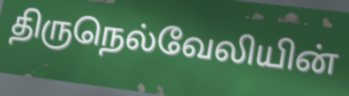
திருநெல்வேலியின்